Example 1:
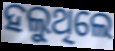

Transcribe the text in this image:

ହଲୁଥିଲେ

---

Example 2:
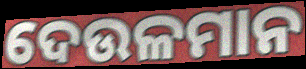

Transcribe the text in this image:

ଦେଉଳମାନ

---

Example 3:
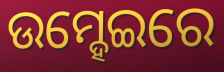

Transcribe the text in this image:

ଉମ୍ହେଇରେ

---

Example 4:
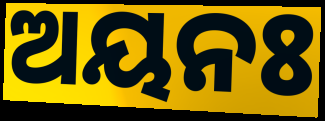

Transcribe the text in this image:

ଅୟନଃ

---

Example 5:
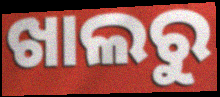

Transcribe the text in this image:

ଖାଲରୁ